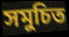
সমুচিত